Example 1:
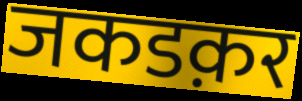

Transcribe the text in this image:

जकडक़र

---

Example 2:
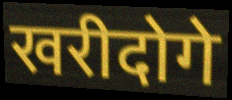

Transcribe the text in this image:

खरीदोगे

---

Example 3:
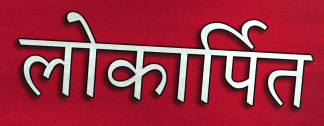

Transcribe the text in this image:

लोकार्पित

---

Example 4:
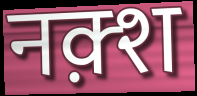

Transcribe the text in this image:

नक़्श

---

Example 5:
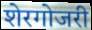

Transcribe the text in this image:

शेरगोजरी